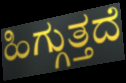
ಹಿಗ್ಗುತ್ತದೆ